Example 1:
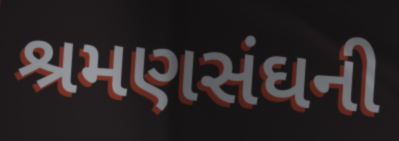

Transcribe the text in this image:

શ્રમણસંઘની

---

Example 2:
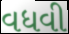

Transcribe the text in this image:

વધવી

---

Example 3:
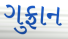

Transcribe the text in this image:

ગુફ્રાન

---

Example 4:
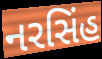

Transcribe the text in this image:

નરસિંહ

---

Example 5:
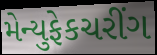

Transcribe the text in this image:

મેન્યુફેકચરીંગ